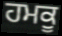
ਹਮਕੂ